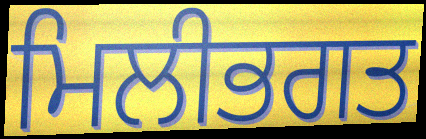
ਮਿਲੀਭਗਤ